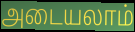
அடையலாம்